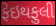
ફેઇથફુલી